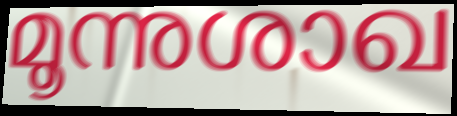
മൂന്നുശാഖ